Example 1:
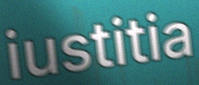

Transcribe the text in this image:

iustitia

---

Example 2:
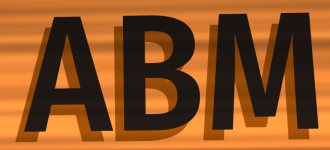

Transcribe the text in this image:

ABM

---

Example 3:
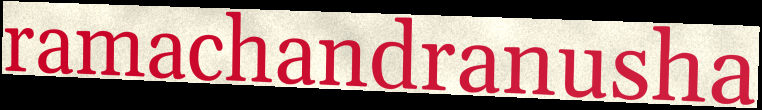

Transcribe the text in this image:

ramachandranusha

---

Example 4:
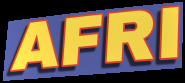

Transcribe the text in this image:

AFRI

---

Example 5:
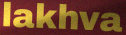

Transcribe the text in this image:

lakhva